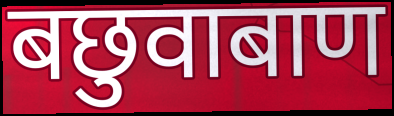
बछुवाबाण